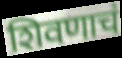
शिवणाचं